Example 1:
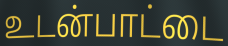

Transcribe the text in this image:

உடன்பாட்டை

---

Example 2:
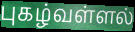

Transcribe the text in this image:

புகழ்வள்ளல்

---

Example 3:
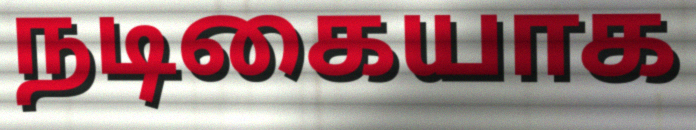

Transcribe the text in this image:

நடிகையாக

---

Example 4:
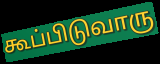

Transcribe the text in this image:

கூப்பிடுவாரு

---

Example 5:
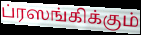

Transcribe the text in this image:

ப்ரஸங்கிக்கும்